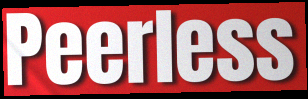
Peerless